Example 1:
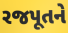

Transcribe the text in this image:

રજપૂતને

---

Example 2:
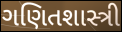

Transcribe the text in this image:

ગણિતશાસ્ત્રી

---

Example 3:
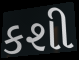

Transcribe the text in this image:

કશી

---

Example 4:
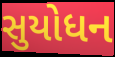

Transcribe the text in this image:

સુયોધન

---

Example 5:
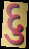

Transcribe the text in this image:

દુ